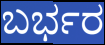
ಬರ್ಭರ